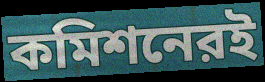
কমিশনেরই